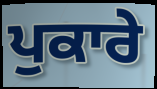
ਪੁਕਾਰੇ